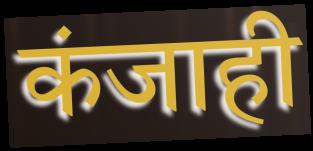
कंजाही